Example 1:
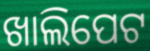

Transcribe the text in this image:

ଖାଲିପେଟ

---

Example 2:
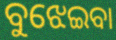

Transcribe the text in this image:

ବୁଝେଇବା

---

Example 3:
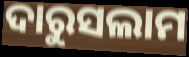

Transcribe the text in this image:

ଦାରୁସଲାମ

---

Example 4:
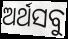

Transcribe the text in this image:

ଅର୍ଥସବୁ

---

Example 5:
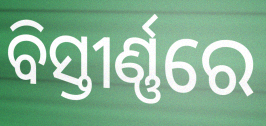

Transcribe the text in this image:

ବିସ୍ତୀର୍ଣ୍ଣରେ